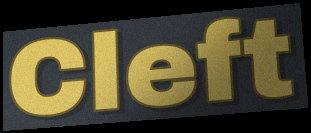
Cleft